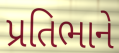
પ્રતિભાને